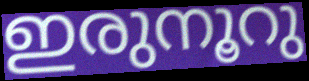
ഇരുനൂറു